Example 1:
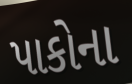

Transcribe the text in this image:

પાકોના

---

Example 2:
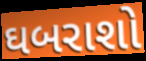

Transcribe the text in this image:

ઘબરાશો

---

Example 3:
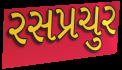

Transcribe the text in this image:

રસપ્રચુર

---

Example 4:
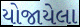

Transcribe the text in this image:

યોજાયેલા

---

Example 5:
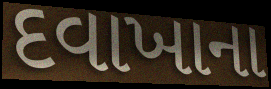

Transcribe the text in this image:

દવાખાના